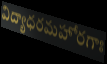
విద్యాధరమహోరగాః